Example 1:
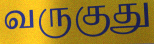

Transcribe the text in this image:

வருகுது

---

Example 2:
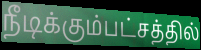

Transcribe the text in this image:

நீடிக்கும்பட்சத்தில்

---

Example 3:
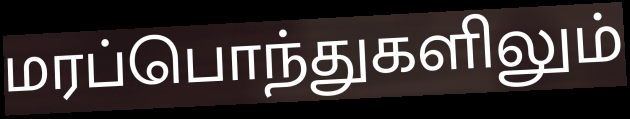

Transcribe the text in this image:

மரப்பொந்துகளிலும்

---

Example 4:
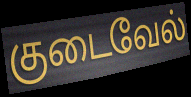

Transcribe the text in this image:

குடைவேல்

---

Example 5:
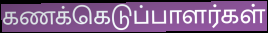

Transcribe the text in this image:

கணக்கெடுப்பாளர்கள்